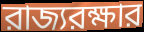
রাজ্যরক্ষার